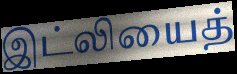
இட்லியைத்